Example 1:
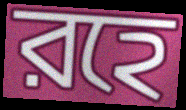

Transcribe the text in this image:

রহে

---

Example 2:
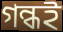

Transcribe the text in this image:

গন্ধই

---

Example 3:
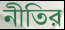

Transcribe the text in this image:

নীতির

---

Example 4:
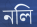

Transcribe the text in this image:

নলি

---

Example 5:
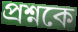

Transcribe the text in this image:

প্রশ্নকে